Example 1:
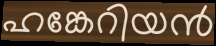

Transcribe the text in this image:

ഹങ്കേറിയൻ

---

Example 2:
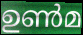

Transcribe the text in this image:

ഉൺമ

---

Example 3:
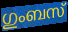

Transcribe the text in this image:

ഗുംബസ്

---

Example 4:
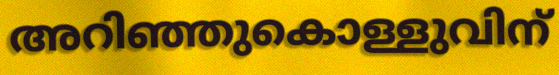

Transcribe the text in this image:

അറിഞ്ഞുകൊള്ളുവിന്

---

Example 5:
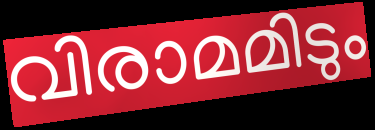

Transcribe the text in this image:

വിരാമമിടും